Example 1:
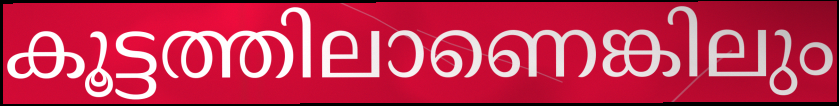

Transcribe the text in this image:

കൂട്ടത്തിലാണെങ്കിലും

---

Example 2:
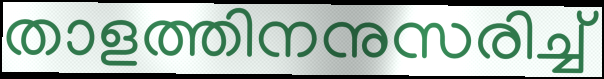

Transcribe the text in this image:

താളത്തിനനുസരിച്ച്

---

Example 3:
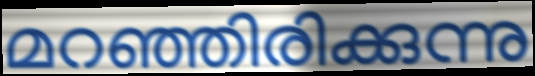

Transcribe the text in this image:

മറഞ്ഞിരിക്കുന്നു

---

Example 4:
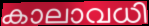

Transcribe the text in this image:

കാലാവധി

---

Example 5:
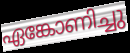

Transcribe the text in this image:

ഏങ്കോണിച്ചു